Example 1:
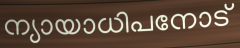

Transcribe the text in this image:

ന്യായാധിപനോട്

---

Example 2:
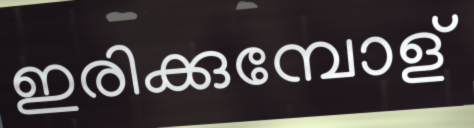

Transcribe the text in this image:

ഇരിക്കുമ്പോള്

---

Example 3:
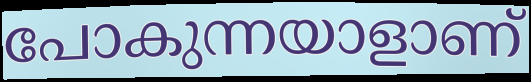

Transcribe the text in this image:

പോകുന്നയാളാണ്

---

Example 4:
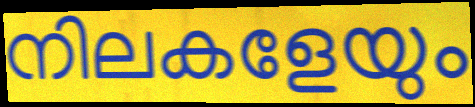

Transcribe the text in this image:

നിലകളേയും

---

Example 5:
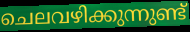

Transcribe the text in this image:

ചെലവഴിക്കുന്നുണ്ട്